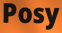
Posy